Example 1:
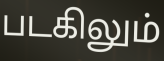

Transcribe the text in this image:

படகிலும்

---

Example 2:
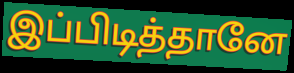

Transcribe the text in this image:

இப்பிடித்தானே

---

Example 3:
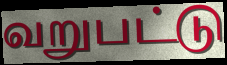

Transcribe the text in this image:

வறுபட்டு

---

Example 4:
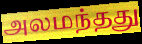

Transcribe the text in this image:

அலமந்தது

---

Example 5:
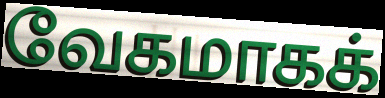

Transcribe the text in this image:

வேகமாகக்